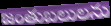
జంతుబలులను